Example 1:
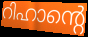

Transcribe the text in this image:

റിഹാന്റെ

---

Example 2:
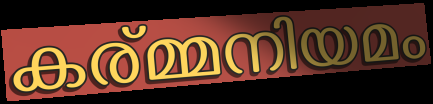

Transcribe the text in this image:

കര്മ്മനിയമം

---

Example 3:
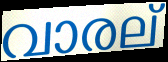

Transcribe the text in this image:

വാരല്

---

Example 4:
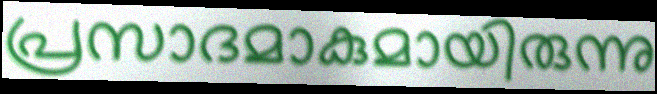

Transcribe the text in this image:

പ്രസാദമാകുമായിരുന്നു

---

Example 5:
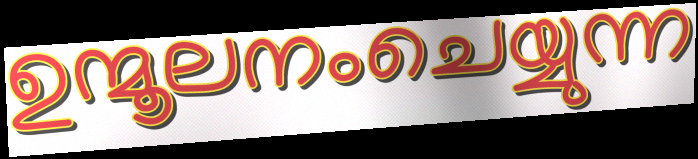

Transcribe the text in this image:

ഉന്മൂലനംചെയ്യുന്ന